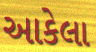
આકેલા